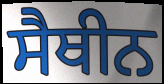
ਸੈਥੀਨ